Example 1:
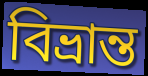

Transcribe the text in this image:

বিভ্ৰান্ত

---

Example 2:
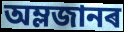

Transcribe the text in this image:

অম্লজানৰ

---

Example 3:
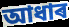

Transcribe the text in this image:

আধাৰ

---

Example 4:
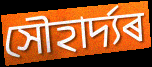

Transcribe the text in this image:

সৌহাৰ্দ্যৰ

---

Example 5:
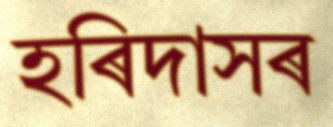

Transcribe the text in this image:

হৰিদাসৰ